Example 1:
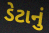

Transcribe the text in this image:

ડેટાનું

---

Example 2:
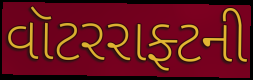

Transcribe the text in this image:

વૉટરરાફ્ટની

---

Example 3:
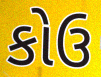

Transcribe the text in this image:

કોઉ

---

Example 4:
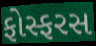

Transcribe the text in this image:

ફોસ્ફરસ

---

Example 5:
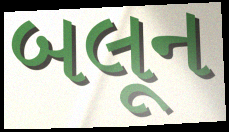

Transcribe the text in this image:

બલૂન